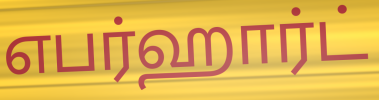
எபர்ஹார்ட்